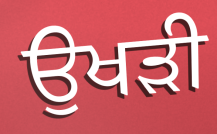
ਉਖੜੀ